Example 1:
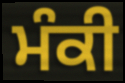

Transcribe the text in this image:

ਮੰਕੀ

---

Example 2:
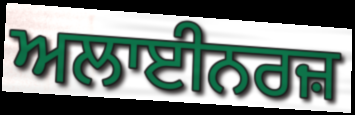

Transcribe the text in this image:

ਅਲਾਈਨਰਜ਼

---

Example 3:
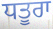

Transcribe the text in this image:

ਧਤੂਰਾ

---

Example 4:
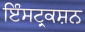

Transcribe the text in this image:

ਇੰਸਟ੍ਰਕਸ਼ਨ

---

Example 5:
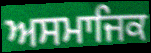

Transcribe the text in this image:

ਅਸਮਾਜਿਕ